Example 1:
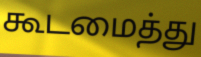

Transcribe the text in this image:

கூடமைத்து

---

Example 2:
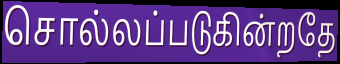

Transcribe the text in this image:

சொல்லப்படுகின்றதே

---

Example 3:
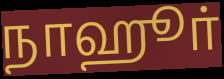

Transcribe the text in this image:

நாஹூர்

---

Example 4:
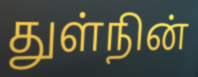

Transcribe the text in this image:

துள்நின்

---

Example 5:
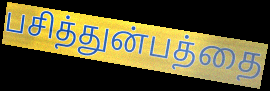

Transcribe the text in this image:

பசித்துன்பத்தை